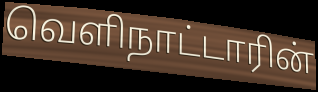
வெளிநாட்டாரின்